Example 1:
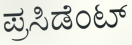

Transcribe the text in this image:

ಪ್ರಸಿಡೆಂಟ್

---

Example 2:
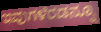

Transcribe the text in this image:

ಇವುಗಳೆರಡನ್ನೂ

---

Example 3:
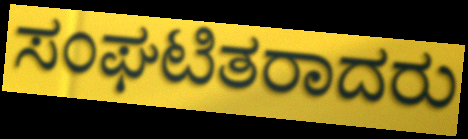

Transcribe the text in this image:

ಸಂಘಟಿತರಾದರು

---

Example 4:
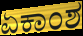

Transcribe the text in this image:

ಏಕಾಂಶ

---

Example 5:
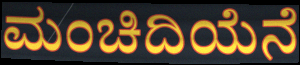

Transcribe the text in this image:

ಮಂಚಿದಿಯೆನೆ